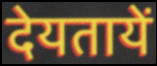
देयतायें